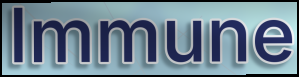
Immune